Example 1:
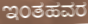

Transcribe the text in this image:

ಇಂತಹವರ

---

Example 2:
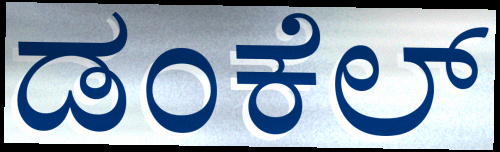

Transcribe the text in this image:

ಡಂಕೆಲ್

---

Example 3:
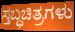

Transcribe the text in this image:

ಸ್ತಬ್ಧಚಿತ್ರಗಳು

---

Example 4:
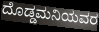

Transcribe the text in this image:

ದೊಡ್ಡಮನಿಯವರ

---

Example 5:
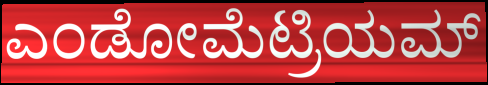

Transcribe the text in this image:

ಎಂಡೋಮೆಟ್ರಿಯಮ್